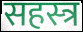
सहस्‍त्र